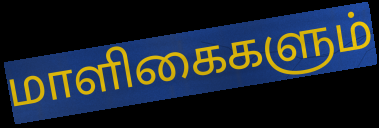
மாளிகைகளும்